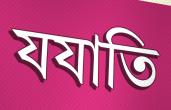
যযাতি